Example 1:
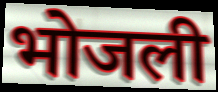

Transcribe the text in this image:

भोजली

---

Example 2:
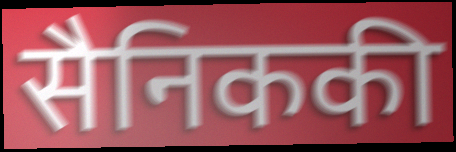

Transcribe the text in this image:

सैनिककी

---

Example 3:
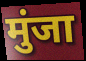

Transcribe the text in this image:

मुंजा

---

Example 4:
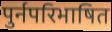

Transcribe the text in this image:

पुर्नपरिभाषित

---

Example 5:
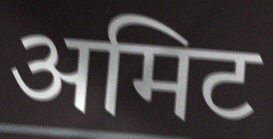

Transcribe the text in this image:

अमिट